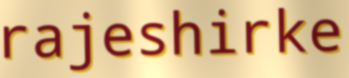
rajeshirke